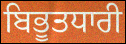
ਬਿਭੂਤਧਾਰੀ